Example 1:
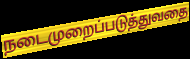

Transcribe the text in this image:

நடைமுறைப்படுத்துவதை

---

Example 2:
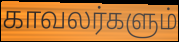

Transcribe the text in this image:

காவலர்களும்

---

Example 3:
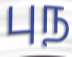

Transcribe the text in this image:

புந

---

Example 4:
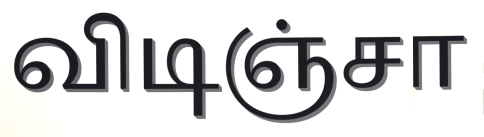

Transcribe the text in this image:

விடிஞ்சா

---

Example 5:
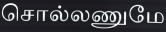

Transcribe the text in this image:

சொல்லணுமே